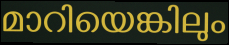
മാറിയെങ്കിലും